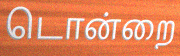
டொன்றை